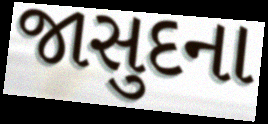
જાસુદના